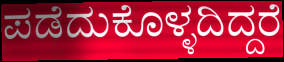
ಪಡೆದುಕೊಳ್ಳದಿದ್ದರೆ